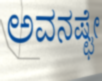
ಅವನಷ್ಟೇ